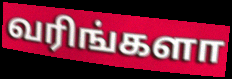
வரிங்களா